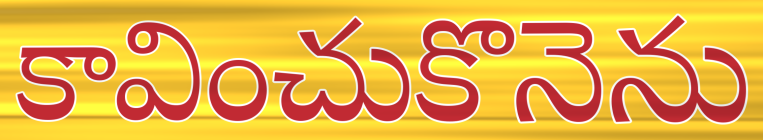
కావించుకొనెను